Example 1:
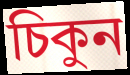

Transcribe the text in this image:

চিকুন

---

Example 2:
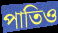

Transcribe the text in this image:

পাতিও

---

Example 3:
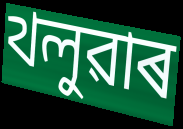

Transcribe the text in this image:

থলুৱাৰ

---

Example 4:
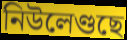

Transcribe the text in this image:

নিউলেণ্ডছে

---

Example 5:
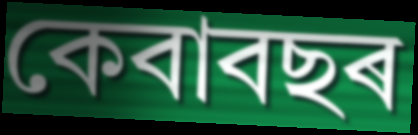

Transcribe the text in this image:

কেবাবছৰ